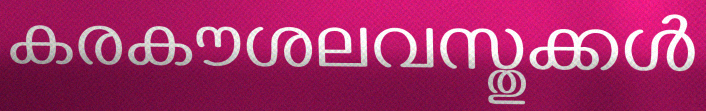
കരകൗശലവസ്തുക്കൾ